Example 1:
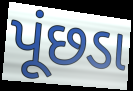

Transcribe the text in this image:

પૂંછડા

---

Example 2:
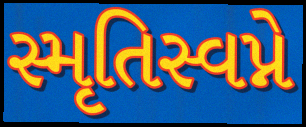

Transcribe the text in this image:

સ્મૃતિસ્વપ્ને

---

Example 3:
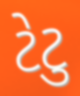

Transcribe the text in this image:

ટેટુ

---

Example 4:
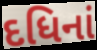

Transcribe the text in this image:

દધિનાં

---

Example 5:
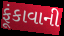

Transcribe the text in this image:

ફૂંકાવાની